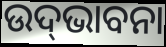
ଉଦ୍‍ଭାବନା